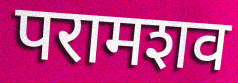
परामशव